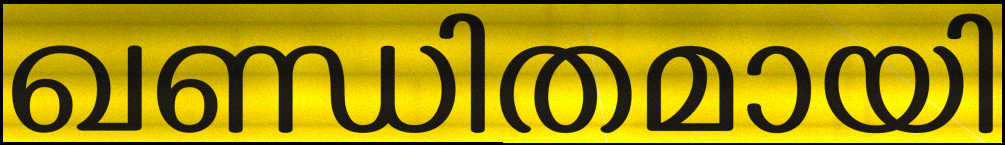
ഖണ്ഡിതമായി